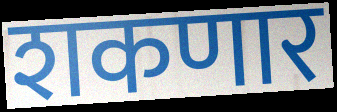
शकणार